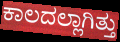
ಕಾಲದಲ್ಲಾಗಿತ್ತು